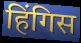
हिंगिस